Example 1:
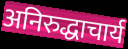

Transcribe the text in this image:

अनिरुद्धाचार्य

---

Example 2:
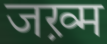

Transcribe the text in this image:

जख़्म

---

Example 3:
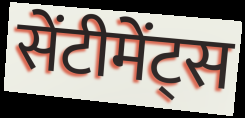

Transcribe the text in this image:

सेंटीमेंट्स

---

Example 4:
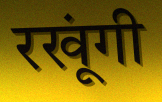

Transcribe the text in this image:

रखूंगी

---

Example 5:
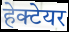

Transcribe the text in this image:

हेक्टेयर